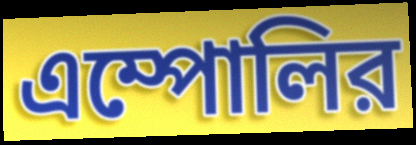
এম্পোলির